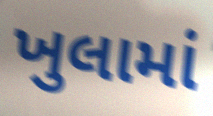
ખુલામાં